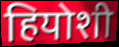
हियोशी